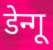
डेन्गू